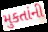
મુકતાંની